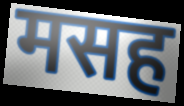
मसह